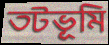
তটভূমি